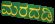
ಮರದಡಿ